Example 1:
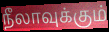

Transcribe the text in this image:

நீலாவுக்கும்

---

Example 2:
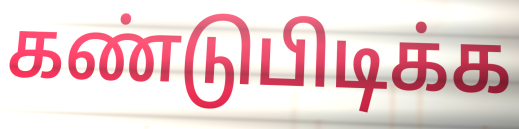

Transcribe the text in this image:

கண்டுபிடிக்க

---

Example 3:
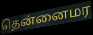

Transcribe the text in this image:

தென்னைமர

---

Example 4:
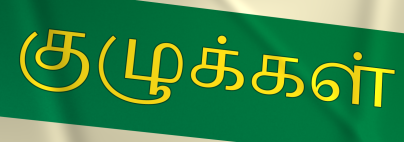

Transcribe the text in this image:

குழுக்கள்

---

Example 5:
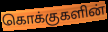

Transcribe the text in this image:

கொக்குகளின்